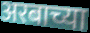
अरबाच्या